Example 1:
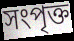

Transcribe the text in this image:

সংপৃক্ত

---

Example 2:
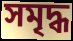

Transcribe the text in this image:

সমৃদ্ধ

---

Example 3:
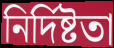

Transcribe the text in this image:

নিৰ্দিষ্টতা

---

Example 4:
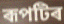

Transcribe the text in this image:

ৰূপটিৰ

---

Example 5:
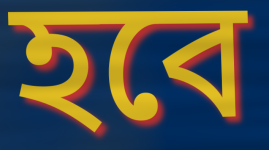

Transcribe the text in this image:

হবে